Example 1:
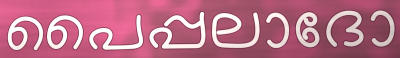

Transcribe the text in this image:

പൈപ്പലാദോ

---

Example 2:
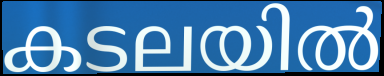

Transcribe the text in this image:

കടലയിൽ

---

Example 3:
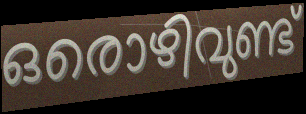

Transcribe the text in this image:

ഒരൊഴിവുണ്ട്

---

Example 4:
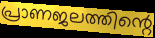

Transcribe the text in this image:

പ്രാണജലത്തിന്റെ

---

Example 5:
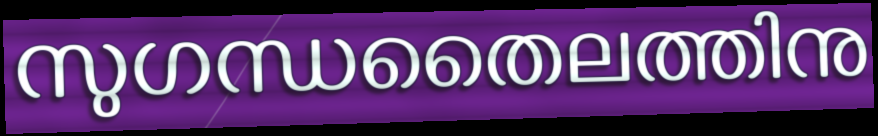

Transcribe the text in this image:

സുഗന്ധതൈലത്തിനു